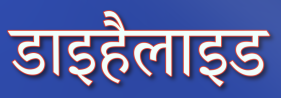
डाइहैलाइड